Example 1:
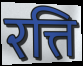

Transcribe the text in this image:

रत्ति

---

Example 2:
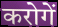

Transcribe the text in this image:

करोगें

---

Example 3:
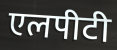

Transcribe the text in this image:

एलपीटी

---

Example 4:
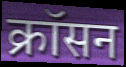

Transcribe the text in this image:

क्रॉसन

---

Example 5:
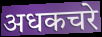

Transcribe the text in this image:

अधकचरे